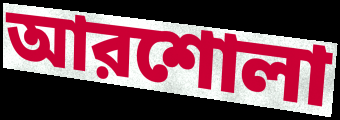
আরশোলা